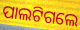
ପାଲଟିଗଲେ